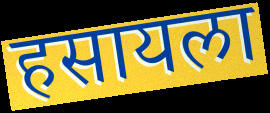
हसायला